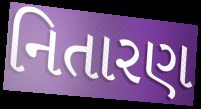
નિતારણ